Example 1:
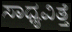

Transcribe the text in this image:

ಸಾಧ್ಯವಿತ್ತೆ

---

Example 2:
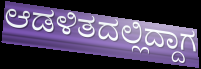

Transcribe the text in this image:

ಆಡಳಿತದಲ್ಲಿದ್ದಾಗ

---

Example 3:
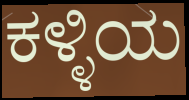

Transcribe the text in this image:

ಕಳ್ಳಿಯ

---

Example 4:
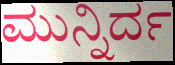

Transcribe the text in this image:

ಮುನ್ನಿರ್ದ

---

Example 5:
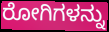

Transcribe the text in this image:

ರೋಗಿಗಳನ್ನು